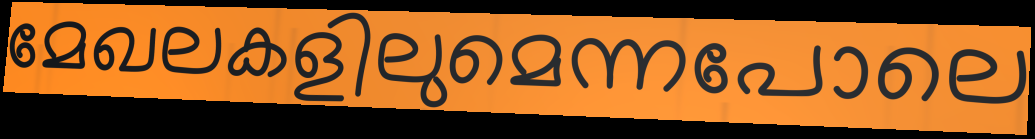
മേഖലകളിലുമെന്നപോലെ